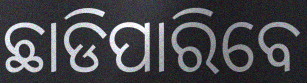
ଛାଡିପାରିବେ